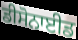
ਡੀਸੋਨਾਈਡ